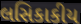
લસિકાકીય